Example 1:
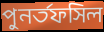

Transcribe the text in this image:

পুনর্তফসিল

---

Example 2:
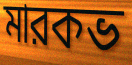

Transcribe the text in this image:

মারকভ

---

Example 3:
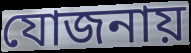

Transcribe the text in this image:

যোজনায়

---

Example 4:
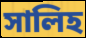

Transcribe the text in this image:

সালিহ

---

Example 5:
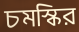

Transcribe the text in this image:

চমস্কির